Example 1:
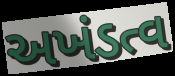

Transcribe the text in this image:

અખંડત્વ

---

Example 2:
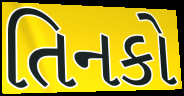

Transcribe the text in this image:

તિનકો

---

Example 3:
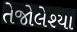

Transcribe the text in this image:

તેજોલેશ્યા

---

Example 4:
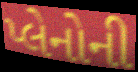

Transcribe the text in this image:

પ્લેનોની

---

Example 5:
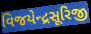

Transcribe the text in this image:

વિજયેન્દ્રસૂરિજી